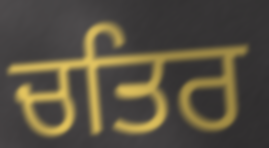
ਚਤਿਰ